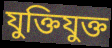
যুক্তিযুক্ত